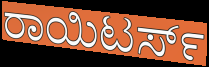
ರಾಯಿಟರ್ಸ್